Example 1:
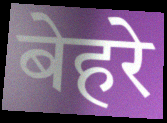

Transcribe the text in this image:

बेहरे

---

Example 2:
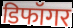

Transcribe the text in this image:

डिफॉगर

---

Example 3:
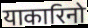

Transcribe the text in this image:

याकारिनो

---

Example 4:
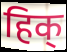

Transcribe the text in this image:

हिक्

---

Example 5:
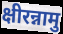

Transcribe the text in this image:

क्षीरन्नामु